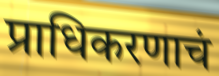
प्राधिकरणाचं